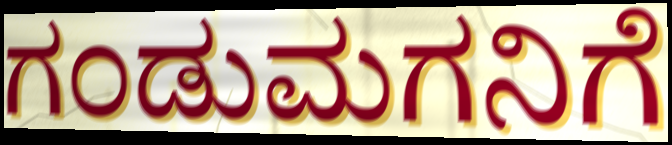
ಗಂಡುಮಗನಿಗೆ